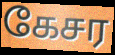
கேசர